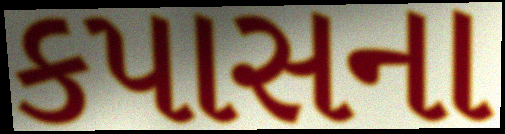
કપાસના